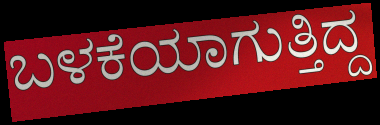
ಬಳಕೆಯಾಗುತ್ತಿದ್ದ